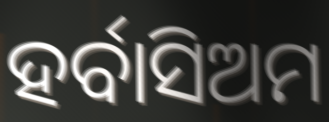
ହର୍ବାସିଅମ